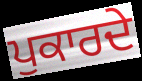
ਪੁਕਾਰਦੇ